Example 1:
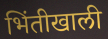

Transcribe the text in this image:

भिंतीखाली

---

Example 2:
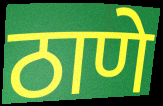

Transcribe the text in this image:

ठाणे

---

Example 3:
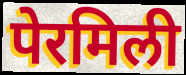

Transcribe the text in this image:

पेरमिली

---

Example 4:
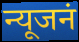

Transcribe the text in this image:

न्यूजनं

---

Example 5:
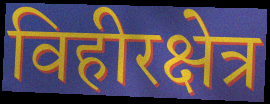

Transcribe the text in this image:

विहीरक्षेत्र